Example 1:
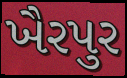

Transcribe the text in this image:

ખૈરપુર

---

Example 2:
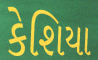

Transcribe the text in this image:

કેશિયા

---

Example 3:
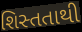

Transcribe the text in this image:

શિસ્તતાથી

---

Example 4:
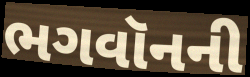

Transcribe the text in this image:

ભગવૉનની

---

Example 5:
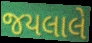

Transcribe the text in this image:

જયલાલે